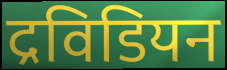
द्रविडियन